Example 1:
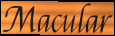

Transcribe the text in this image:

Macular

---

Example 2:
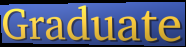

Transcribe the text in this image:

Graduate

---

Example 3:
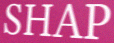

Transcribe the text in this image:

SHAP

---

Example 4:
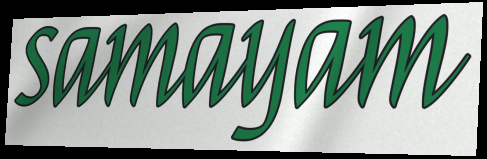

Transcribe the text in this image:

samayam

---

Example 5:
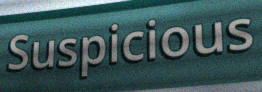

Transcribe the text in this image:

Suspicious